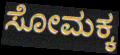
ಸೋಮಕ್ಕ